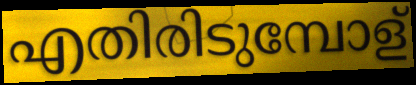
എതിരിടുമ്പോള്